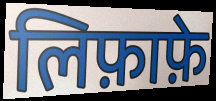
लिफ़ाफ़े